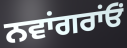
ਨਵਾਂਗਰਾਂਓਂ